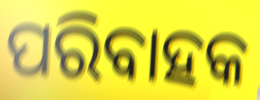
ପରିବାହକ